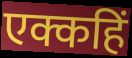
एक्कहिं